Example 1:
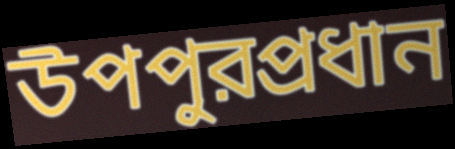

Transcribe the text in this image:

উপপুরপ্রধান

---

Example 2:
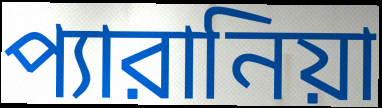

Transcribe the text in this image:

প্যারানিয়া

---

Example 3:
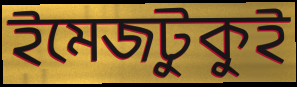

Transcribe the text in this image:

ইমেজটুকুই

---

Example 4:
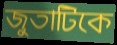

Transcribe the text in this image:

জুতাটিকে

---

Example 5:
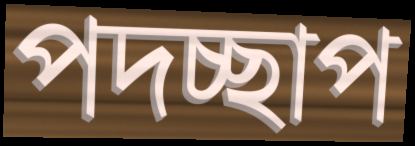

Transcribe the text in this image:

পদচ্ছাপ